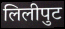
लिलीपुट